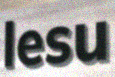
Iesu